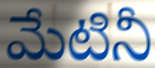
మేటినీ